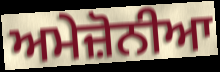
ਅਮੇਜ਼ੋਨੀਆ